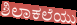
ಶಿಲಾಕಲೆಯು